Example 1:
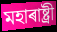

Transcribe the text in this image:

মহাৰাষ্ট্ৰী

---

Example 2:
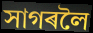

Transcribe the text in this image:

সাগৰলৈ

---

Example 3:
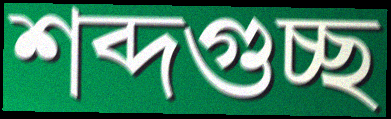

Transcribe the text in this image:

শব্দগুচ্ছ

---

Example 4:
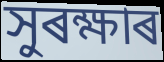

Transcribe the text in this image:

সুৰক্ষাৰ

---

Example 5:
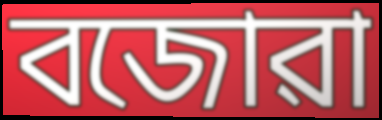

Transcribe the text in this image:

বজোৱা